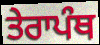
ਤੇਰਾਪੰਥ